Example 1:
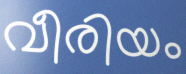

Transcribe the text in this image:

വീരിയം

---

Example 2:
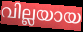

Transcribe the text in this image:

വില്ലയായ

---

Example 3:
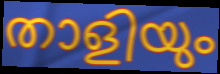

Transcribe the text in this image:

താളിയും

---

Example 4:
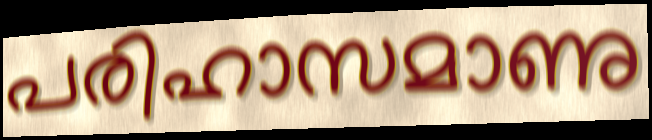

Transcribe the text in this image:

പരിഹാസമാണു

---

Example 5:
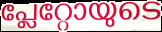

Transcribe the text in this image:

പ്ലേറ്റോയുടെ